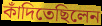
কাঁদিতেছিলেন